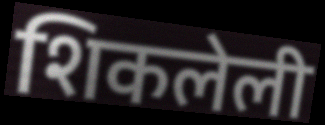
शिकलेली